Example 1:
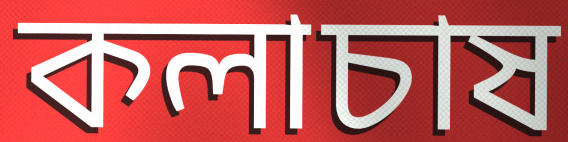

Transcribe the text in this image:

কলাচাষ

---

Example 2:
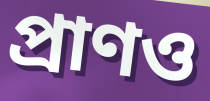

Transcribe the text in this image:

প্রাণও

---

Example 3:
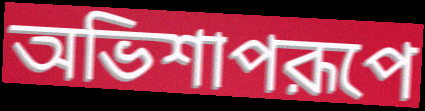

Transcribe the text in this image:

অভিশাপরূপে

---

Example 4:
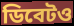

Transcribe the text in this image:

ডিবেটও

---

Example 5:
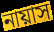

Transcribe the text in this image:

নায়াস